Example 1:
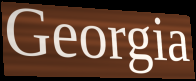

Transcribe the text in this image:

Georgia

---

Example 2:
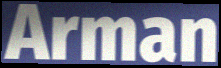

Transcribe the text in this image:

Arman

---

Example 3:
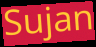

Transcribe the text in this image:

Sujan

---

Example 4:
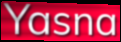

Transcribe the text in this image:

Yasna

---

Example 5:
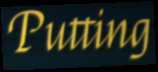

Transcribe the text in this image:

Putting